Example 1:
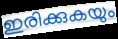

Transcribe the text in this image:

ഇരിക്കുകയും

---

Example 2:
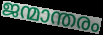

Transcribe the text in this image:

ജന്മാന്തരം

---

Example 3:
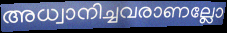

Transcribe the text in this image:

അധ്വാനിച്ചവരാണല്ലോ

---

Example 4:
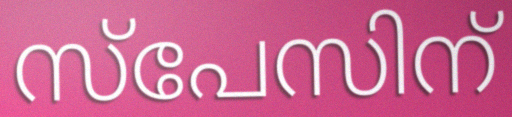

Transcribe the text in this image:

സ്പേസിന്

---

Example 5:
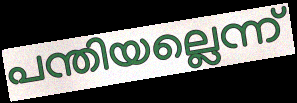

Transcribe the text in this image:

പന്തിയല്ലെന്ന്